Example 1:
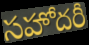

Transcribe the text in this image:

సహోదరీ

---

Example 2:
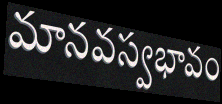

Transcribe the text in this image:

మానవస్వభావం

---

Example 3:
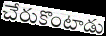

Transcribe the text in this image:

చేరుకొంటాడు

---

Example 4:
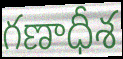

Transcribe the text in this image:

గణాధీశ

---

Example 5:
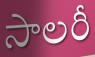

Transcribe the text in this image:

సాలరీ